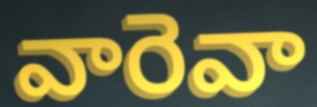
వారెవా